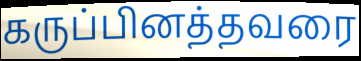
கருப்பினத்தவரை